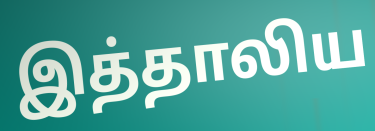
இத்தாலிய